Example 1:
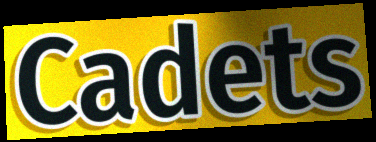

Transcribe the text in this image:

Cadets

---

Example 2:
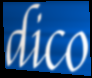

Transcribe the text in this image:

dico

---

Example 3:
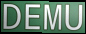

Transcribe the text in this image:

DEMU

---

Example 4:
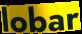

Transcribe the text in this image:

lobar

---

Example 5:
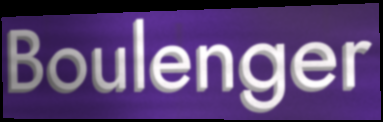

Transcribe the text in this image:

Boulenger